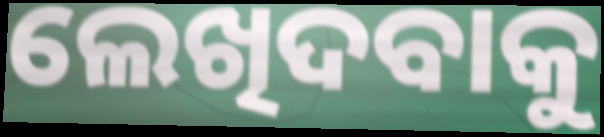
ଲେଖିଦବାକୁ